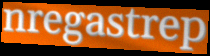
nregastrep